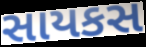
સાયકસ